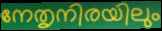
നേതൃനിരയിലും